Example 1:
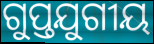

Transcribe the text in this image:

ଗୁପ୍ତଯୁଗୀୟ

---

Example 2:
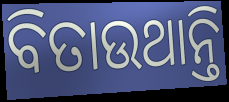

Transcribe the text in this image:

ବିତାଉଥାନ୍ତି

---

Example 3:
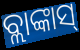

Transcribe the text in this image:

ବ୍ଲାଙ୍କାସ୍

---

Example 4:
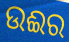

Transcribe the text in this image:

ଉଈର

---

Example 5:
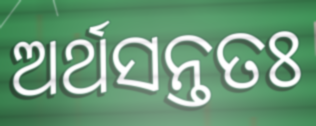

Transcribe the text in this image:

ଅର୍ଥସନ୍ତତଃ